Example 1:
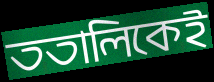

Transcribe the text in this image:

ততালিকেই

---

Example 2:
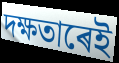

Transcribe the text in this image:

দক্ষতাৰেই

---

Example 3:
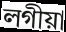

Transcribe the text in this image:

লগীয়া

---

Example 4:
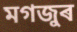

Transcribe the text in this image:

মগজুৰ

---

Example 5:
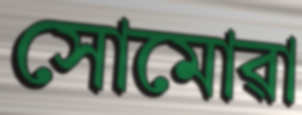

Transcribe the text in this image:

সোমোৱা